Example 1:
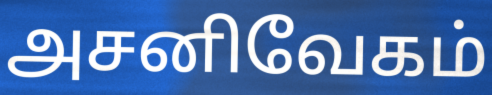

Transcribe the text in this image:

அசனிவேகம்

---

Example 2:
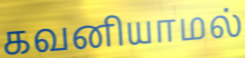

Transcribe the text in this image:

கவனியாமல்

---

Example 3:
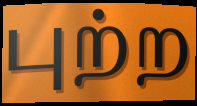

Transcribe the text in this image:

புற்ற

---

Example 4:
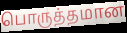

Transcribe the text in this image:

பொருத்தமான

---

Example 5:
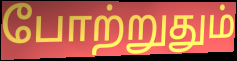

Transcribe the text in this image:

போற்றுதும்